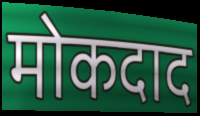
मोकदाद